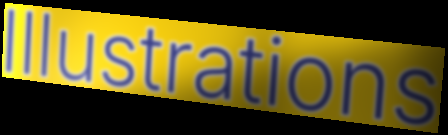
Illustrations